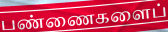
பண்ணைகளைப்